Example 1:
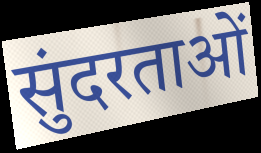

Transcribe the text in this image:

सुंदरताओं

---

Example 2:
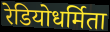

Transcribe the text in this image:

रेडियोधर्मिता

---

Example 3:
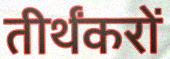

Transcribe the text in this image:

तीर्थंकरों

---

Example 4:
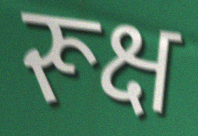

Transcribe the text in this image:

रूक्ष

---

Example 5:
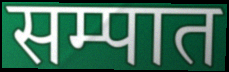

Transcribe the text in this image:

सम्पात